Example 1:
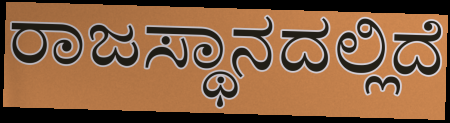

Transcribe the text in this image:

ರಾಜಸ್ಥಾನದಲ್ಲಿದೆ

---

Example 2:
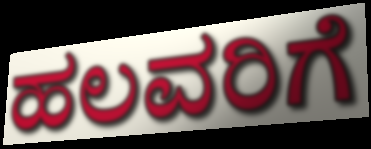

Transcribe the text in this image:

ಹಲವರಿಗೆ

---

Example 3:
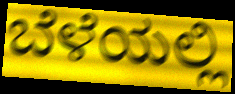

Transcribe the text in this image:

ಬೆಳೆಯಲ್ಲಿ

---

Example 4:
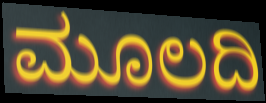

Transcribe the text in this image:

ಮೂಲದಿ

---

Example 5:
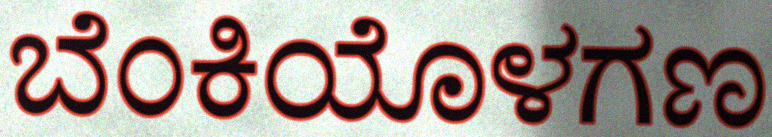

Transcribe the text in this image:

ಬೆಂಕಿಯೊಳಗಣ